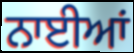
ਨਾਈਆਂ